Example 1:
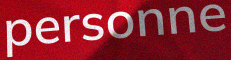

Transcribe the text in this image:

personne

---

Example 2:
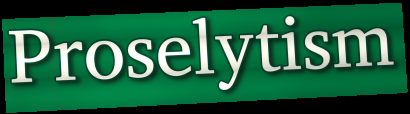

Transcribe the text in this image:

Proselytism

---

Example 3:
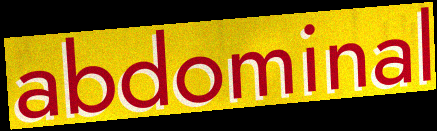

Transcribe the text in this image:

abdominal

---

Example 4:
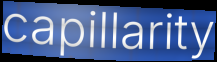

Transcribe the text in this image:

capillarity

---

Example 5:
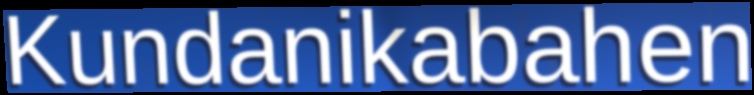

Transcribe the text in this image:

Kundanikabahen